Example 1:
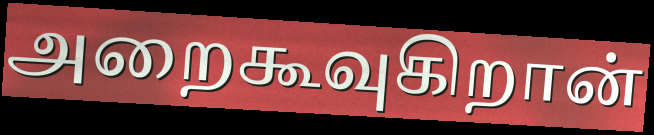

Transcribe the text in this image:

அறைகூவுகிறான்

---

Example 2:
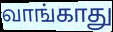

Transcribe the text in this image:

வாங்காது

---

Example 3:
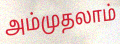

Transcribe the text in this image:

அம்முதலாம்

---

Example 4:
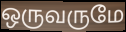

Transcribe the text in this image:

ஒருவருமே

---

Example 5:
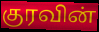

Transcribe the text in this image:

குரவின்